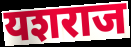
यशराज